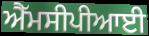
ਐੱਮਸੀਪੀਆਈ